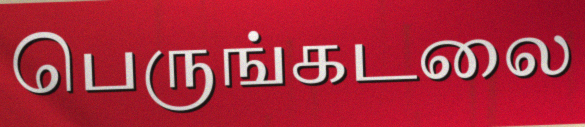
பெருங்கடலை